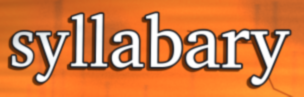
syllabary